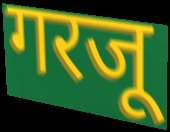
गरजू